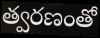
త్వరణంతో